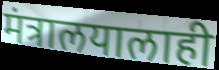
मंत्रालयालाही